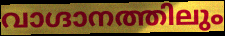
വാഗ്ദാനത്തിലും